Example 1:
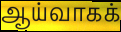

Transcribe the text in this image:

ஆய்வாகக்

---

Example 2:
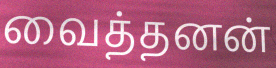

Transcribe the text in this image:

வைத்தனன்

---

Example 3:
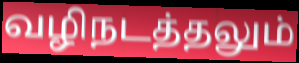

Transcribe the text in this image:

வழிநடத்தலும்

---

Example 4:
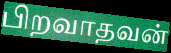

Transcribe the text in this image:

பிறவாதவன்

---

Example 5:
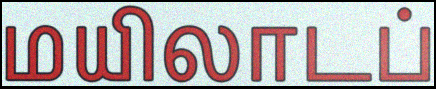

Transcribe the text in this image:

மயிலாடப்